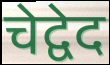
चेद्वेद